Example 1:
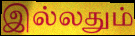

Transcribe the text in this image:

இல்லதும்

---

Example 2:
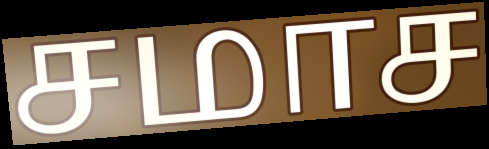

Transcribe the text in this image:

சமாச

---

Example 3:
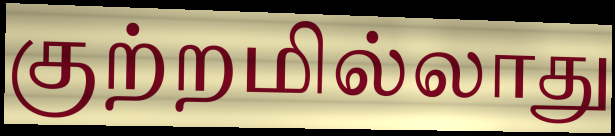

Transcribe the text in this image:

குற்றமில்லாது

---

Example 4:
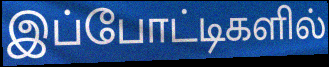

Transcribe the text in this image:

இப்போட்டிகளில்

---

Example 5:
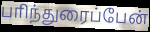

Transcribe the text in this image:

பரிந்துரைப்பேன்